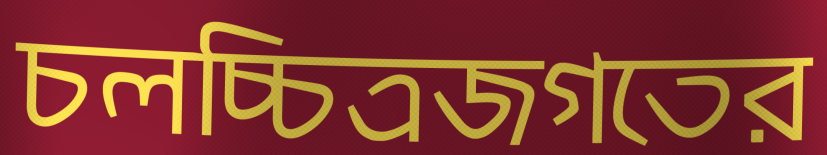
চলচ্চিত্রজগতের